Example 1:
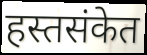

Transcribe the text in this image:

हस्तसंकेत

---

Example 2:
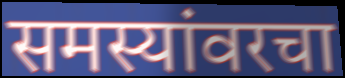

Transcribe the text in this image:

समस्यांवरचा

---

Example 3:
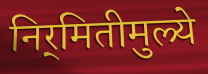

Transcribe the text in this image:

निर्मितीमुल्ये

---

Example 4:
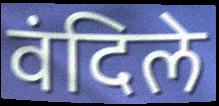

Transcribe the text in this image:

वंदिले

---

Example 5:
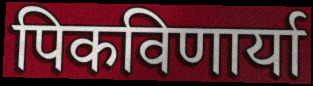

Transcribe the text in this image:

पिकविणार्या